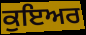
ਕੁਇਅਰ